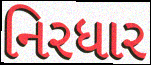
નિરધાર